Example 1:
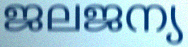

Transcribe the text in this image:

ജലജന്യ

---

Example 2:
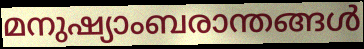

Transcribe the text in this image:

മനുഷ്യാംബരാന്തങ്ങൾ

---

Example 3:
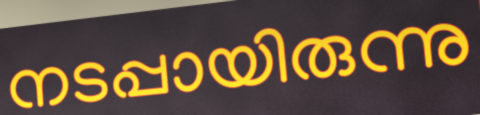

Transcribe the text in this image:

നടപ്പായിരുന്നു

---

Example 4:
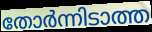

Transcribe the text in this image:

തോർന്നിടാത്ത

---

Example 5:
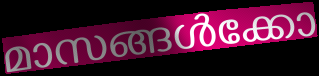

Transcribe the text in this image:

മാസങ്ങൾക്കോ